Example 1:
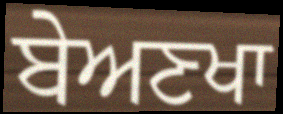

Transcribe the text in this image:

ਬੇਅਣਖਾ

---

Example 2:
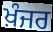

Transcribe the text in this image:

ਖ਼ੰਜਰ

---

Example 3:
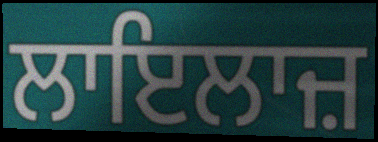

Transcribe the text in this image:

ਲਾਇਲਾਜ਼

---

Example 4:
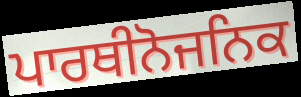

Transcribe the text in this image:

ਪਾਰਥੀਨੋਜਨਿਕ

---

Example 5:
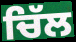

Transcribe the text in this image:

ਚਿੱਲ